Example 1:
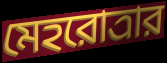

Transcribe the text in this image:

মেহরোত্রার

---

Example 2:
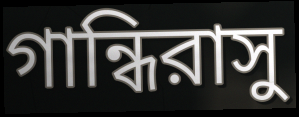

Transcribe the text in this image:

গান্ধিরাসু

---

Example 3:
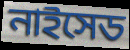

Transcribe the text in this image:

নাইসেড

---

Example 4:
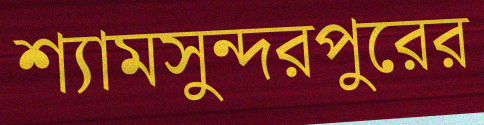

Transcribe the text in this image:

শ্যামসুন্দরপুরের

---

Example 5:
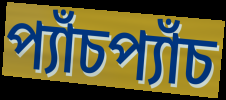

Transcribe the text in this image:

প্যাঁচপ্যাঁচ